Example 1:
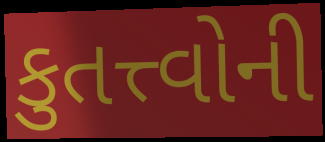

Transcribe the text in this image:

કુતત્ત્વોની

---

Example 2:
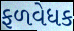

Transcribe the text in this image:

ફળવેધક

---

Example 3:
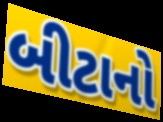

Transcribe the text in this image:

બીટાનો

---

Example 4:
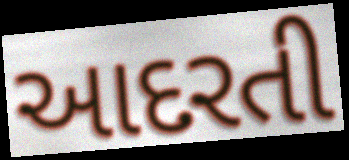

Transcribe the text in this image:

આદરતી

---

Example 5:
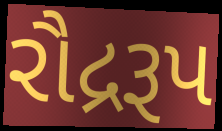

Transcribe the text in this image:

રૌદ્રરૂપ